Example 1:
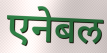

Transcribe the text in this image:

एनेबल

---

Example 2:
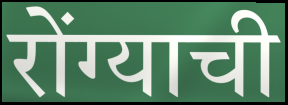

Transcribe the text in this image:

रोंग्याची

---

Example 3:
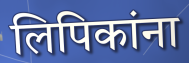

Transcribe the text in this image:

लिपिकांना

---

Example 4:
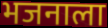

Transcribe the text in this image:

भजनाला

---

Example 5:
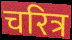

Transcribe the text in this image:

चरित्र